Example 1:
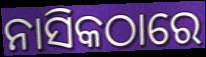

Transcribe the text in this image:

ନାସିକଠାରେ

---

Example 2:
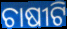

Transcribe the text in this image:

ଚାଷୀଟି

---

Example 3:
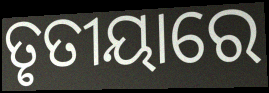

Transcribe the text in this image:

ତୃତୀୟାରେ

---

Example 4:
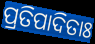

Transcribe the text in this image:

ପ୍ରତିପାଦିତାଃ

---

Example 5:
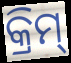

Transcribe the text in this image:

କ୍ରିମ୍